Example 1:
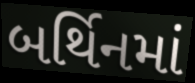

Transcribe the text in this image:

બર્થિનમાં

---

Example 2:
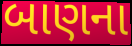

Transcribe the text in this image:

બાણના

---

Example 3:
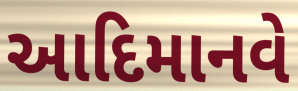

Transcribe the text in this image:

આદિમાનવે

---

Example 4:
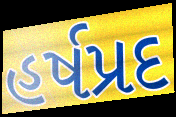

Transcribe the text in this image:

હર્ષપ્રદ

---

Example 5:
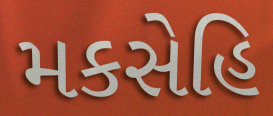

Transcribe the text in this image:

મકસેહિ